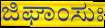
ಜಿಘಾಂಸುಃ